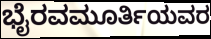
ಭೈರವಮೂರ್ತಿಯವರ